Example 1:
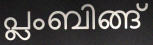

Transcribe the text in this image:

പ്ലംബിങ്ങ്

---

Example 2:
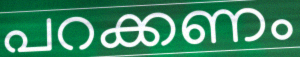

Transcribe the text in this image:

പറക്കണം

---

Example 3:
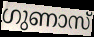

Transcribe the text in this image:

ഗുണാസ്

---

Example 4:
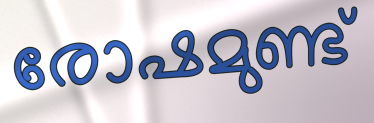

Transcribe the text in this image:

രോഷമുണ്ട്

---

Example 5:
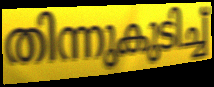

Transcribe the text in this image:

തിന്നുകുടിച്ച്